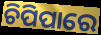
ଚିପିପାରେ